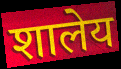
शालेय